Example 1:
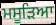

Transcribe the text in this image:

ਮਸੂੜਿਆ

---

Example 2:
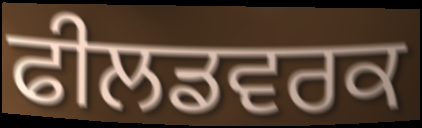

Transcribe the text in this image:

ਫੀਲਡਵਰਕ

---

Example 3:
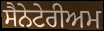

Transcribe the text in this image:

ਸੈਨੇਟੇਰੀਅਮ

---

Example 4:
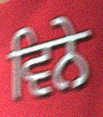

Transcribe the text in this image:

ਵਿਨੇ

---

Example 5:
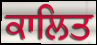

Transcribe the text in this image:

ਕਾਲਿਤ